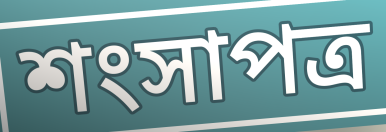
শংসাপত্র